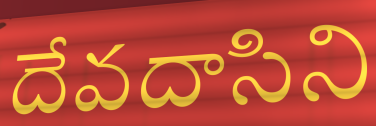
దేవదాసిని